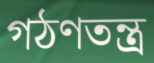
গঠণতন্ত্র